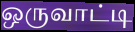
ஒருவாட்டி